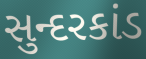
સુન્દરકાંડ